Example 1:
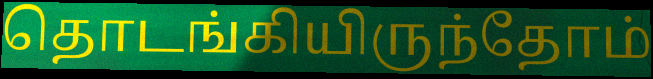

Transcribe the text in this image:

தொடங்கியிருந்தோம்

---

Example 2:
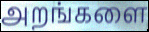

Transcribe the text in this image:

அறங்களை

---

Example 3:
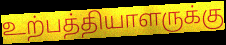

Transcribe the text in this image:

உற்பத்தியாளருக்கு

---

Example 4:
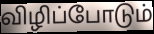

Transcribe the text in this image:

விழிப்போடும்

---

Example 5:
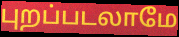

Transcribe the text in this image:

புறப்படலாமே